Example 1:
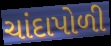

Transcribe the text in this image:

ચાંદાપોળી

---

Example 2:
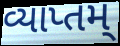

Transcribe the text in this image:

વ્યાપ્તમ્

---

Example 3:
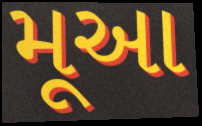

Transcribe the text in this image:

મૂઆ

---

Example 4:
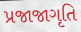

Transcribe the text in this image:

પ્રજાજાગૃતિ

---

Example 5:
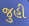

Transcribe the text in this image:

જુહી